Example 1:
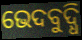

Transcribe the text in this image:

ଭେଦବୁଦ୍ଧି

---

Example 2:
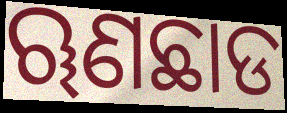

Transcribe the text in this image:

ୠଣଛାଡ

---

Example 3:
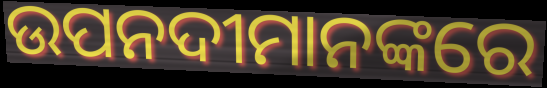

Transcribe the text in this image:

ଉପନଦୀମାନଙ୍କରେ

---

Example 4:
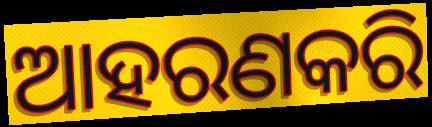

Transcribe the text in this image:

ଆହରଣକରି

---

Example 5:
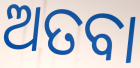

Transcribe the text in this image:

ଅତବା